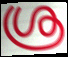
ശ്ര